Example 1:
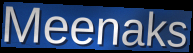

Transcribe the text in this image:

Meenaks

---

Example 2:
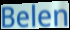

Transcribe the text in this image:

Belen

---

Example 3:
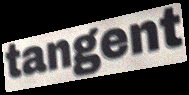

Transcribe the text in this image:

tangent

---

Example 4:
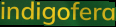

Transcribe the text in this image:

indigofera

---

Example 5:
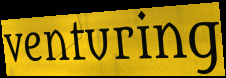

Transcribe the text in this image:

venturing